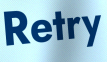
Retry